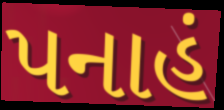
પનાહં